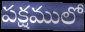
పక్షములో